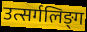
उत्सर्गलिङ्ग